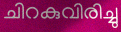
ചിറകുവിരിച്ചു